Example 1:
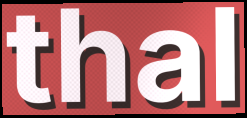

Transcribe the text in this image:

thal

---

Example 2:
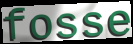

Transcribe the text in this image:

fosse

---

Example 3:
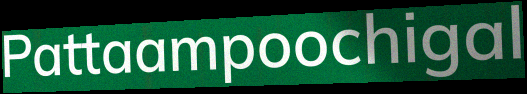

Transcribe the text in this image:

Pattaampoochigal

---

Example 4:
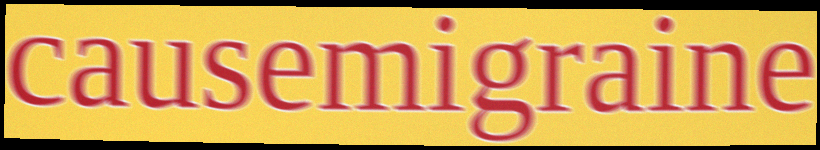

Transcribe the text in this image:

causemigraine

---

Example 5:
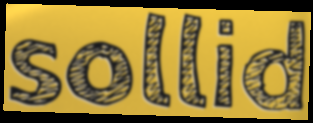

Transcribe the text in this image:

sollid